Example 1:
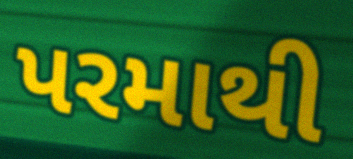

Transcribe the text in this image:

પરમાથી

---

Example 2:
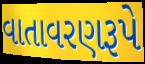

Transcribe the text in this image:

વાતાવરણરૂપે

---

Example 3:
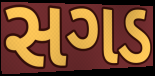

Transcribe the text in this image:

સગડ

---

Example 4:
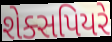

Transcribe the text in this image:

શેક્સપિયરે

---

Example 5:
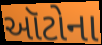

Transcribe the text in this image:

ઑટોના